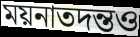
ময়নাতদন্তও